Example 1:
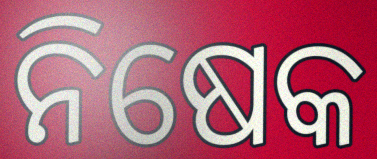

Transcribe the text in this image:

ନିଷେକ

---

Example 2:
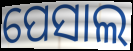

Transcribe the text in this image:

ପେସାଲ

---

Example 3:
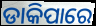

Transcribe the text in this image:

ଡାକିପାରେ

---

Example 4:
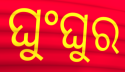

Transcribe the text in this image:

ଘୁଂଘୁର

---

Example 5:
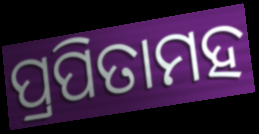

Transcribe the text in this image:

ପ୍ରପିତାମହ